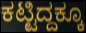
ಕಟ್ಟಿದ್ದಕ್ಕೂ